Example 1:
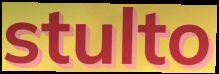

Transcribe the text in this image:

stulto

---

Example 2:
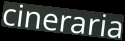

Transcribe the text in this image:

cineraria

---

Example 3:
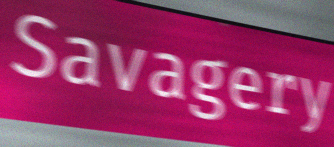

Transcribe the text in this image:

Savagery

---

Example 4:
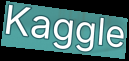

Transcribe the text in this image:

Kaggle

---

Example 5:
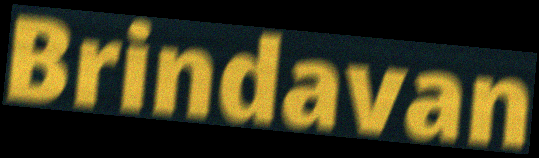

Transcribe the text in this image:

Brindavan